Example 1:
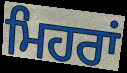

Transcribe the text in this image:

ਮਿਹਰਾਂ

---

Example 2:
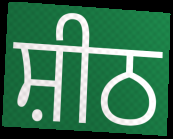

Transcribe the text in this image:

ਸ਼ੀਠ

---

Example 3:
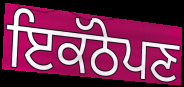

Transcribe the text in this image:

ਇਕੱਠੇਪਣ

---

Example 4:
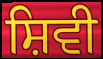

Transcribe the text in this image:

ਸ਼ਿਵੀ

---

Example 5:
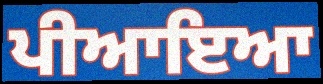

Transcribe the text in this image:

ਪੀਆਇਆ